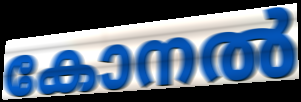
കോനൽ